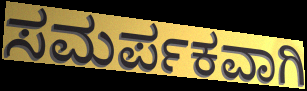
ಸಮರ್ಪಕವಾಗಿ